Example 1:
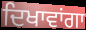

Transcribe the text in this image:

ਦਿਖਾਵਾਂਗਾ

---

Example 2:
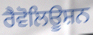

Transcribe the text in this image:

ਰੈਵੋਲਿਊਸ਼ਨ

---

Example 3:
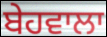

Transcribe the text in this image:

ਬੇਹਵਾਲਾ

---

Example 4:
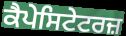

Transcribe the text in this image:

ਕੈਪੇਸਿਟੇਟਰਜ਼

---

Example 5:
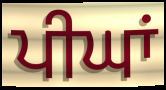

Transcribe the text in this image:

ਪੀਘਾਂ